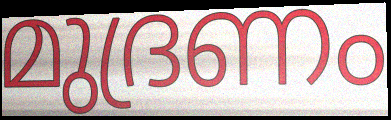
മുദ്രണം